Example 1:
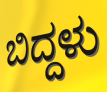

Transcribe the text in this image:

ಬಿದ್ದಳು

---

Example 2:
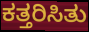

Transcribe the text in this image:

ಕತ್ತರಿಸಿತು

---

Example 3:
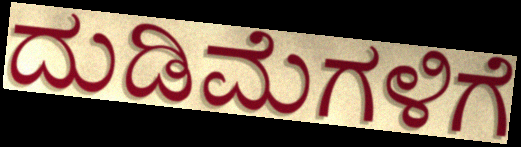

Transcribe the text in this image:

ದುಡಿಮೆಗಳಿಗೆ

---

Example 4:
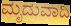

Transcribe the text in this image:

ಮೃದುವಾದಿ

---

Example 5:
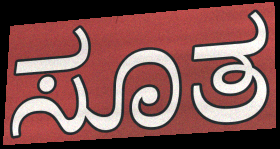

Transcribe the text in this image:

ಸೂತ